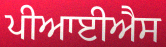
ਪੀਆਈਐਸ